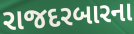
રાજદરબારના